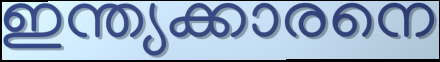
ഇന്ത്യക്കാരനെ